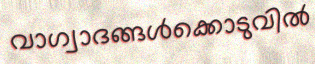
വാഗ്വാദങ്ങൾക്കൊടുവിൽ